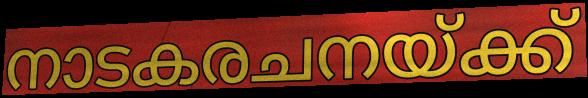
നാടകരചനയ്ക്ക്